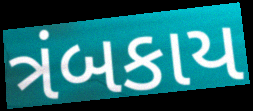
ત્રંબકાય